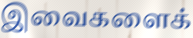
இவைகளைக்